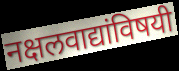
नक्षलवाद्यांविषयी